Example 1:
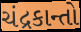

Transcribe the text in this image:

ચંદ્રકાન્તો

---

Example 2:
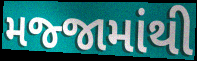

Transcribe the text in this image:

મજ્જામાંથી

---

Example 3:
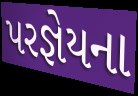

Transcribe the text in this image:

પરજ્ઞેયના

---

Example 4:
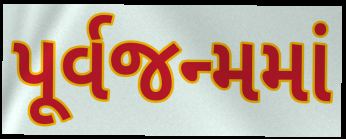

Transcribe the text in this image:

પૂર્વજન્મમાં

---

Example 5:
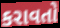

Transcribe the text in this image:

કરાવતો